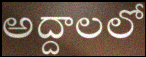
అద్దాలలో